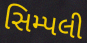
સિમ્પલી